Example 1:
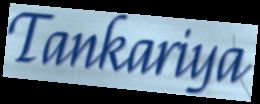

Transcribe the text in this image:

Tankariya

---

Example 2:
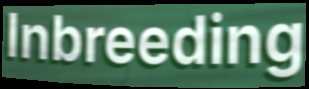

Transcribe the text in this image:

Inbreeding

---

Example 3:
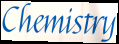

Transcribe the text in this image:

Chemistry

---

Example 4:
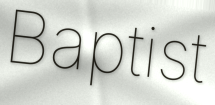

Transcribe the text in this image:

Baptist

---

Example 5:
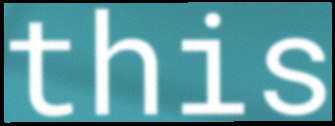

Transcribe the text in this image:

this